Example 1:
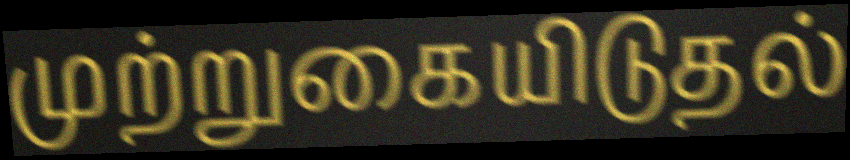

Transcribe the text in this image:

முற்றுகையிடுதல்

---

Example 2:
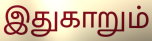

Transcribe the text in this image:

இதுகாறும்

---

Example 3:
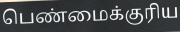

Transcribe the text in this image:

பெண்மைக்குரிய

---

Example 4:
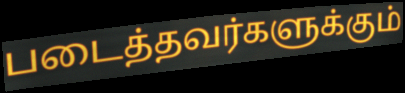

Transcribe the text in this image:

படைத்தவர்களுக்கும்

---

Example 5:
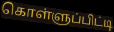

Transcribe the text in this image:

கொள்ளுப்பிட்டி